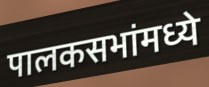
पालकसभांमध्ये